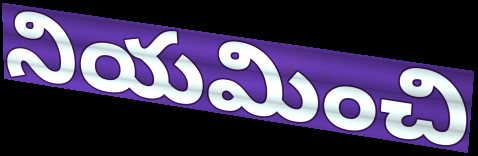
నియమించి